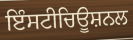
ਇੰਸਟੀਚਿਊਸ਼ਨਲ